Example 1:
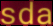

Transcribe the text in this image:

sda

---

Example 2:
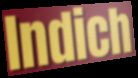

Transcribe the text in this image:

Indich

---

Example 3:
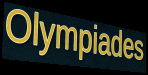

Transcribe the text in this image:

Olympiades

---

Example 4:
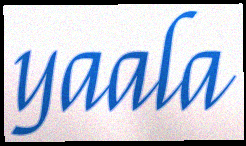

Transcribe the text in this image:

yaala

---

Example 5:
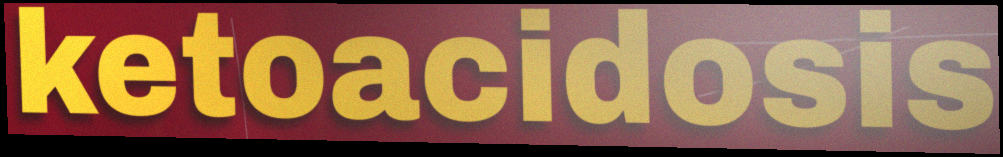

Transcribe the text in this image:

ketoacidosis